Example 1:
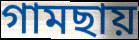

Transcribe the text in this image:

গামছায়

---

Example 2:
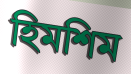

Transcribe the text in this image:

হিমশিম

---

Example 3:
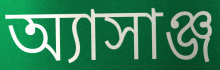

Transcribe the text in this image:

অ্যাসাঞ্জ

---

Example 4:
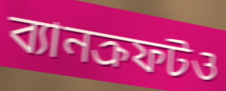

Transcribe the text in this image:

ব্যানক্রফটও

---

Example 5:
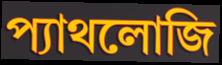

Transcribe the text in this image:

প্যাথলোজি